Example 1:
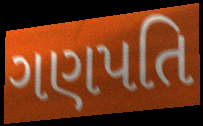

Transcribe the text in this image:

ગણપતિ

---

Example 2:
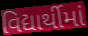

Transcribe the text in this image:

વિદ્યાર્થીમાં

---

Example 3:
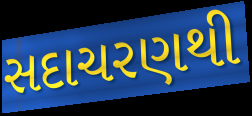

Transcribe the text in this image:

સદાચરણથી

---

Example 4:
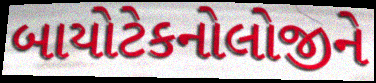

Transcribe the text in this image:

બાયોટેકનોલોજીને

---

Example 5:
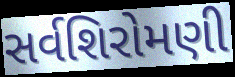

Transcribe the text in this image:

સર્વશિરોમણી